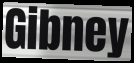
Gibney